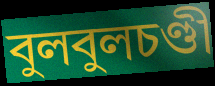
বুলবুলচণ্ডী